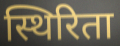
स्थिरिता